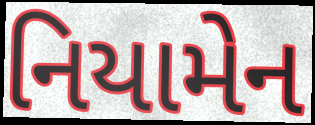
નિયામેન